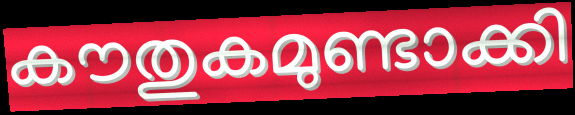
കൗതുകമുണ്ടാക്കി